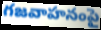
గజవాహనంపై